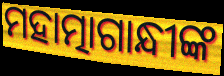
ମହାତ୍ମାଗାନ୍ଧୀଙ୍କ